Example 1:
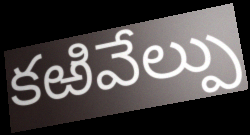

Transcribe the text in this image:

కఱివేల్పు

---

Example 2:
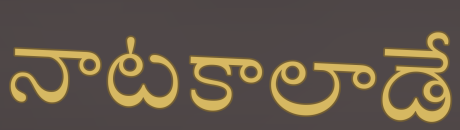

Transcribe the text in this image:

నాటకాలాడే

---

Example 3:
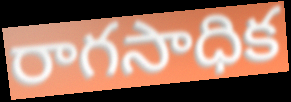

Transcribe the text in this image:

రాగసాధిక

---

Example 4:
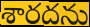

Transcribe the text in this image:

శారదను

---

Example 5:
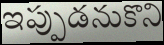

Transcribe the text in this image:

ఇప్పుడనుకొని